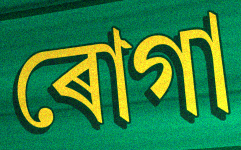
ৰোগা